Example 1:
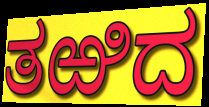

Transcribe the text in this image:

ತಱಿದ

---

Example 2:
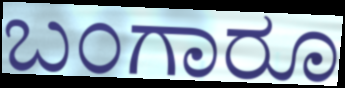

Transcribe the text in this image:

ಬಂಗಾರೂ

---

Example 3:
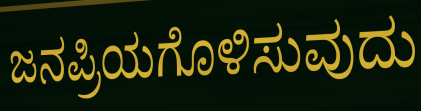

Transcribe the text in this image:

ಜನಪ್ರಿಯಗೊಳಿಸುವುದು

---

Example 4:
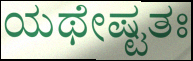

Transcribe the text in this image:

ಯಥೇಷ್ಟತಃ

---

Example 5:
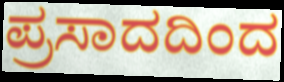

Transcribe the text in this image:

ಪ್ರಸಾದದಿಂದ